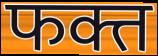
फक्त